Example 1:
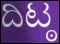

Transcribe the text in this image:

ದಿಟ್ಠ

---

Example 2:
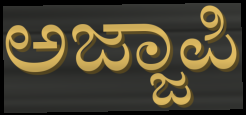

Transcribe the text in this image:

ಅಜ್ಜಾಪಿ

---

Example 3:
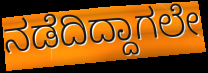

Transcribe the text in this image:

ನಡೆದಿದ್ದಾಗಲೇ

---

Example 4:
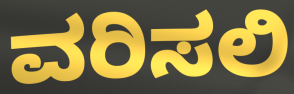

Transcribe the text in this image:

ವರಿಸಲಿ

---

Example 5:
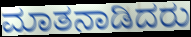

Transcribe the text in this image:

ಮಾತನಾಡಿದರು